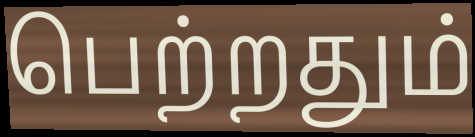
பெற்றதும்